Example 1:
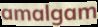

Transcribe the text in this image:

amalgam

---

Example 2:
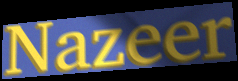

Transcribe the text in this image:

Nazeer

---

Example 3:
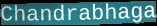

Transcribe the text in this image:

Chandrabhaga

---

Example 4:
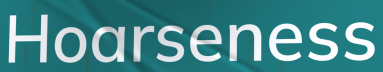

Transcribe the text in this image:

Hoarseness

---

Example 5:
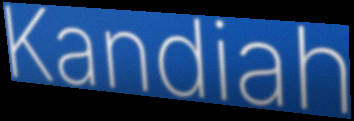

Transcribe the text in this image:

Kandiah